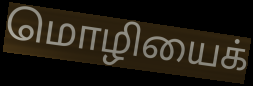
மொழியைக்